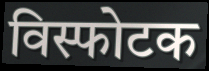
विस्फोटक